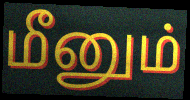
மீனும்